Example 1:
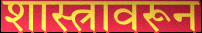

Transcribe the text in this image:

शास्त्रावरून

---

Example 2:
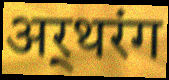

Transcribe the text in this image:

अर्थरंग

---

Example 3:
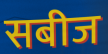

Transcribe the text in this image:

सबीज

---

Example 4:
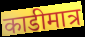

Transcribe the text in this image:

काडीमात्र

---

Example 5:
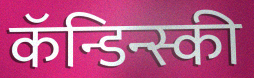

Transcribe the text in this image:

कॅन्डिन्स्की